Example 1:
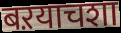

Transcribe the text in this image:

बऱयाचशा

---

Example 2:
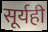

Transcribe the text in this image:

सूर्यही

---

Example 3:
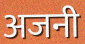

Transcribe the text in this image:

अजनी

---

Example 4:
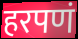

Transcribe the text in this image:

हरपणं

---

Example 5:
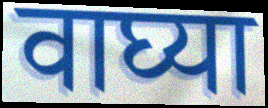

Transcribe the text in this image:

वाघ्या